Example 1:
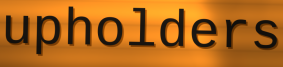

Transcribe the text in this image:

upholders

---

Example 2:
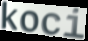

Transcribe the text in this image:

koci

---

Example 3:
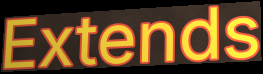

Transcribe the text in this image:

Extends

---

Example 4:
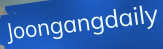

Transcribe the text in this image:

Joongangdaily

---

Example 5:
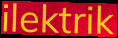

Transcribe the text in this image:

ilektrik